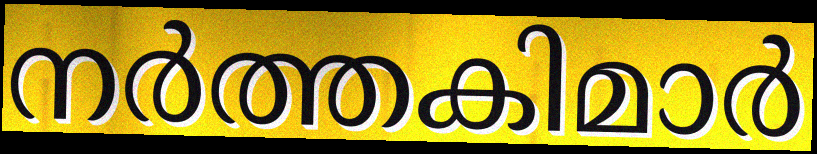
നർത്തകിമാർ